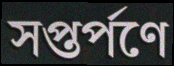
সপ্তর্পণে